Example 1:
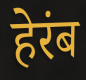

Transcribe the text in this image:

हेरंब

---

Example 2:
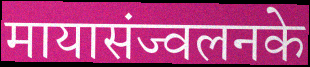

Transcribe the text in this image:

मायासंज्वलनके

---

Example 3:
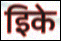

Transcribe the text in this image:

इिके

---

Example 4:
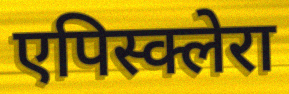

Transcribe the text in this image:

एपिस्क्लेरा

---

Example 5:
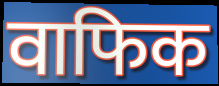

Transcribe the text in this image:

वाफिक